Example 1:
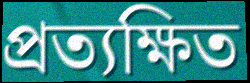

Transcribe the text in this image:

প্রত্যক্ষিত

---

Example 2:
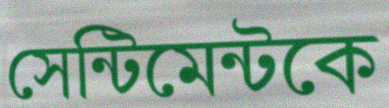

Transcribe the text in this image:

সেন্টিমেন্টকে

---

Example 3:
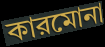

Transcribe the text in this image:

কারমোনা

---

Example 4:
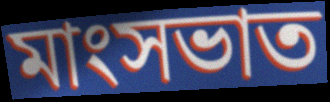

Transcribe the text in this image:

মাংসভাত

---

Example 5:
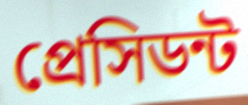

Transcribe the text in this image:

প্রেসিডন্ট